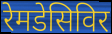
रेमडेसिविर